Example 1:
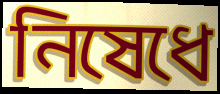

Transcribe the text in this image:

নিষেধে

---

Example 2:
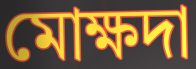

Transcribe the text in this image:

মোক্ষদা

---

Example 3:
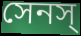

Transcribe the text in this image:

সেনস্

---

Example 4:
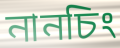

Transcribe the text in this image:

নানচিং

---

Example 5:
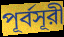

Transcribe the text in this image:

পূর্বসূরী